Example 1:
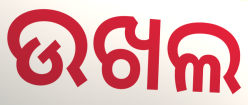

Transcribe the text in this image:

ଉଖଲ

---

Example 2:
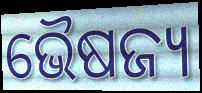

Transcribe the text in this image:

ଭୈଷଜ୍ୟ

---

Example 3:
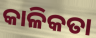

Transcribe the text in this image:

କାଳିକତା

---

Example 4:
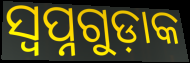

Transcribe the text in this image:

ସ୍ୱପ୍ନଗୁଡ଼ାକ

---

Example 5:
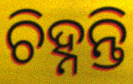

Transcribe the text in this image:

ଚିହ୍ନନ୍ତି